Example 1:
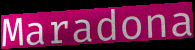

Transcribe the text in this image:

Maradona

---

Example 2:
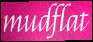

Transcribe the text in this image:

mudflat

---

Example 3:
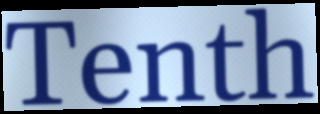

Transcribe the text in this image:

Tenth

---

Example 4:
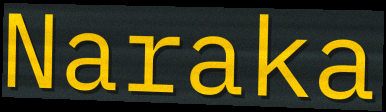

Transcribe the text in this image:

Naraka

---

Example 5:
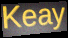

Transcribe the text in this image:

Keay